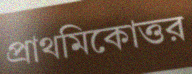
প্রাথমিকোত্তর